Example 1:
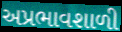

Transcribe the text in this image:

અપ્રભાવશાળી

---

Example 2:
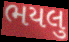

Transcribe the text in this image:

ભયલુ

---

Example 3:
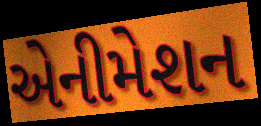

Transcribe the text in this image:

એનીમેશન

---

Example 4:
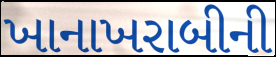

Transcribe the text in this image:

ખાનાખરાબીની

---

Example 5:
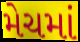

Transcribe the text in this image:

મેચમાં